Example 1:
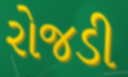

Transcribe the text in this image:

રોજડી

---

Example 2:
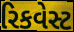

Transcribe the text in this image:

રિકવેસ્ટ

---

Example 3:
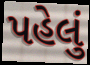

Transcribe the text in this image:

પહેલું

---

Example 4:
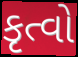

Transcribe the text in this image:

કૃત્વો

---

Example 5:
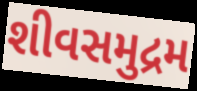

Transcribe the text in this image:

શીવસમુદ્રમ